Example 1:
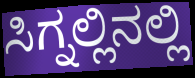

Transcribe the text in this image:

ಸಿಗ್ನಲ್ಲಿನಲ್ಲಿ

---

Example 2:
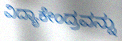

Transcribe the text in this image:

ವಿದ್ಯಾಕೇಂದ್ರವನ್ನು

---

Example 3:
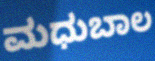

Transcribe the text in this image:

ಮಧುಬಾಲ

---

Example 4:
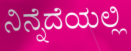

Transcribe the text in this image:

ನಿನ್ನೆದೆಯಲ್ಲಿ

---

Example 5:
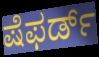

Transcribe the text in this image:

ಷೆಫರ್ಡ್